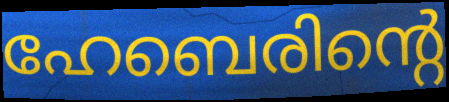
ഹേബെരിന്റെ